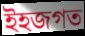
ইহজগত